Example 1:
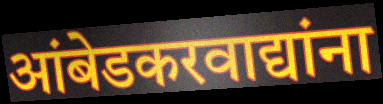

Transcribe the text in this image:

आंबेडकरवाद्यांना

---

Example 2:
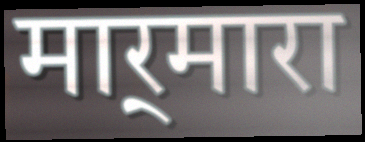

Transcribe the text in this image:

मार्मारा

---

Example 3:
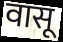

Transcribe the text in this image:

वासू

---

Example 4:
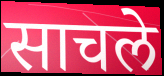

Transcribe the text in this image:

साचले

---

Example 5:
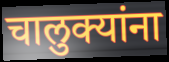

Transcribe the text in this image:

चालुक्यांना